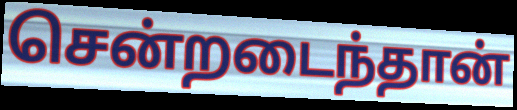
சென்றடைந்தான்